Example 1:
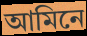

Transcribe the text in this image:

আমিনে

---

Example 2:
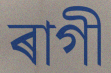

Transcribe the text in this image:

ৰাগী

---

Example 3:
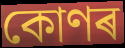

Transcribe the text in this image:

কোণৰ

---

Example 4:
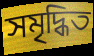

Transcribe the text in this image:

সমৃদ্ধিত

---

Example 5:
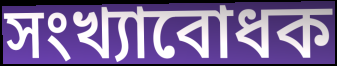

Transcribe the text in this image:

সংখ্যাবোধক